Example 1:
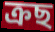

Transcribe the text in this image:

ক্ৰছ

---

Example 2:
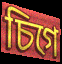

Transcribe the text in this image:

চিগে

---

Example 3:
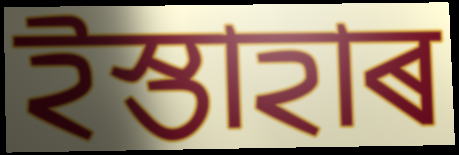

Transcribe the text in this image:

ইস্তাহাৰ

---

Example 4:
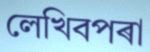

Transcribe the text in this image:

লেখিবপৰা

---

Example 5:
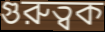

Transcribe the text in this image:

গুৰুত্বক